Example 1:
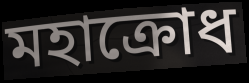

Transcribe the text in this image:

মহাক্রোধ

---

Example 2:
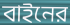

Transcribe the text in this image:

বাইনের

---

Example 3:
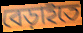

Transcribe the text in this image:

বেড়াইতে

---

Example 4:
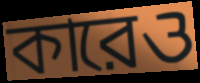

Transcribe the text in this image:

কারেও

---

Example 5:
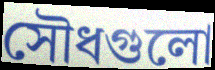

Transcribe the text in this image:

সৌধগুলো